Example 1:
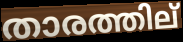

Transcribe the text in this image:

താരത്തില്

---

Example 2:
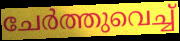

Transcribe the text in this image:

ചേർത്തുവെച്ച്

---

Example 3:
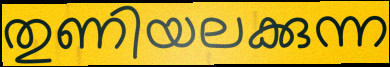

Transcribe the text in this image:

തുണിയലക്കുന്ന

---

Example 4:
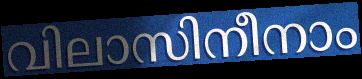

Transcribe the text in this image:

വിലാസിനീനാം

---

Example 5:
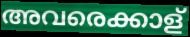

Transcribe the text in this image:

അവരെക്കാള്